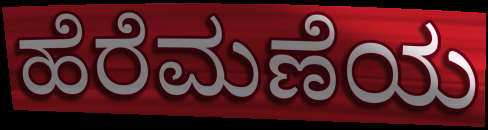
ಹೆರೆಮಣೆಯ